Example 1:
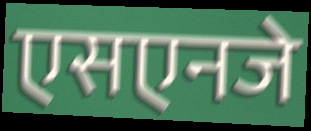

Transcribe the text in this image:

एसएनजे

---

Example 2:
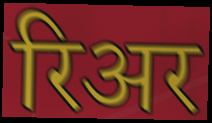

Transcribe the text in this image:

रिअर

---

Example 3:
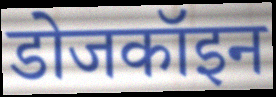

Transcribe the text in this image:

डोजकॉइन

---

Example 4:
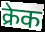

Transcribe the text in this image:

क्रेक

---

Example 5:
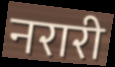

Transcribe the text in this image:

नरारी